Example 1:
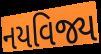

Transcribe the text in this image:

નયવિજ્ય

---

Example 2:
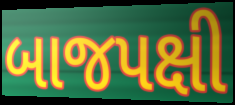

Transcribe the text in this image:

બાજપક્ષી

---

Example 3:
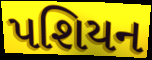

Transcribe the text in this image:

પશિયન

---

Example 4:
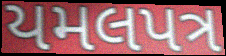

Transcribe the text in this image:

યમલપત્ર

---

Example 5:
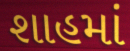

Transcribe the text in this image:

શાહમાં